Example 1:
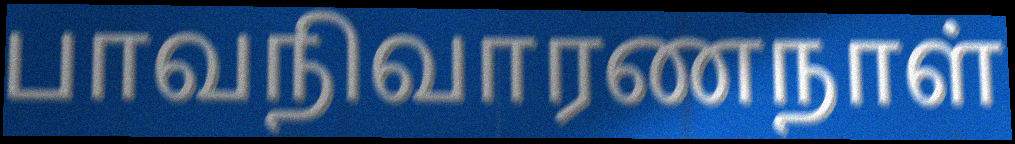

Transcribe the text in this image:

பாவநிவாரணநாள்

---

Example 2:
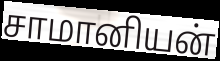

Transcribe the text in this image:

சாமானியன்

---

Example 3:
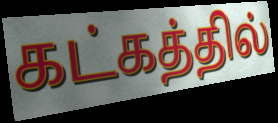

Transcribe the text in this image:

கட்கத்தில்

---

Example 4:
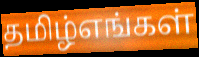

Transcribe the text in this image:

தமிழ்எங்கள்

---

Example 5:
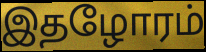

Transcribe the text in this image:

இதழோரம்